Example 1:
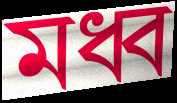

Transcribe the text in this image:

মধ্ব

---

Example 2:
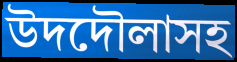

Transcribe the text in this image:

উদদৌলাসহ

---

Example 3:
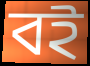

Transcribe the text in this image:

বই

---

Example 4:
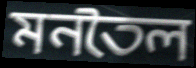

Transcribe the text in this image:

মনতৈল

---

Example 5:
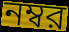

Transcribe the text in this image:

নম্বর